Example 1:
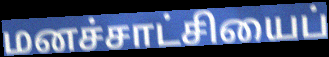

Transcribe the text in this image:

மனச்சாட்சியைப்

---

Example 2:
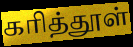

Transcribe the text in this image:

கரித்தூள்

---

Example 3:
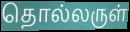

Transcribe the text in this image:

தொல்லருள்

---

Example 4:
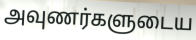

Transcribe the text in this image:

அவுணர்களுடைய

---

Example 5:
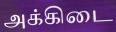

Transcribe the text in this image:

அக்கிடை